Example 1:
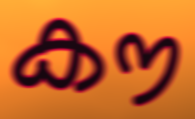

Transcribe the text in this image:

കൗ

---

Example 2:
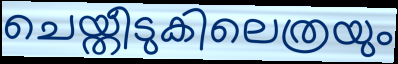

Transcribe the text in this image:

ചെയ്തീടുകിലെത്രയും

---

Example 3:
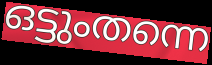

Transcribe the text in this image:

ഒട്ടുംതന്നെ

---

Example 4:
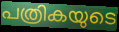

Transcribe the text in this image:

പത്രികയുടെ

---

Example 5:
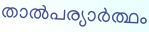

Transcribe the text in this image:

താൽപര്യാർത്ഥം